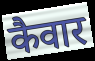
कैवार